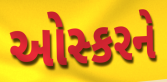
ઓસ્કરને